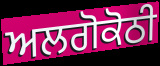
ਅਲਗੋਕੋਠੀ